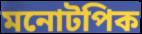
মনোটপিক